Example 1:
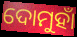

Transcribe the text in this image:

ଦୋମୁହାଁ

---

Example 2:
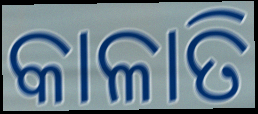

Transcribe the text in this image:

କାଳାତି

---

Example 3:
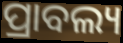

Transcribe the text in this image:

ପ୍ରାବଲ୍ୟ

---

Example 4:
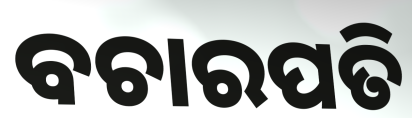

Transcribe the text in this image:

ବଚାରପତି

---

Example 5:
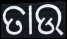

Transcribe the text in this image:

ତାଉ